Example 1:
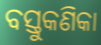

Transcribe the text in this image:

ବସ୍ତୁକଣିକା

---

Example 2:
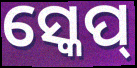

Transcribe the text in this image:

ସ୍କେପ୍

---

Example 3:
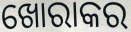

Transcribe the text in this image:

ଖୋରାକର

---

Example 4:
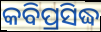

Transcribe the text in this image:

କବିପ୍ରସିଦ୍ଧ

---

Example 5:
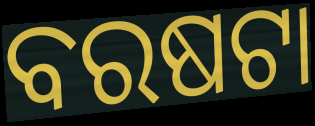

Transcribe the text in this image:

ବରଷଟା